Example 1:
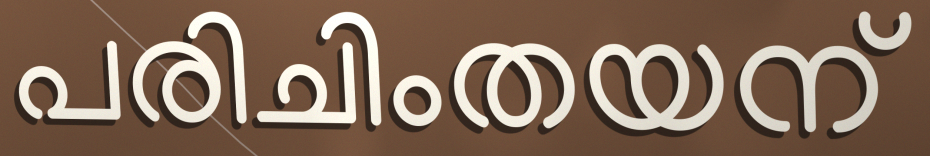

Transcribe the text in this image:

പരിചിംതയന്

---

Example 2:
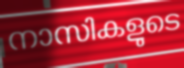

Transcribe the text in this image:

നാസികളുടെ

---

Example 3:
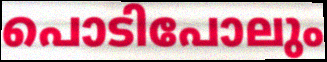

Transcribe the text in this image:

പൊടിപോലും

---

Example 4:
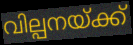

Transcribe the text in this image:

വില്പനയ്ക്ക്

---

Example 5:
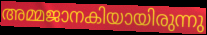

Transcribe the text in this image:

അമ്മജാനകിയായിരുന്നു